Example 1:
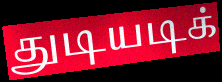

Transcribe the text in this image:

துடியடிக்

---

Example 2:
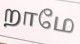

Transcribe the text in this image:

றாமே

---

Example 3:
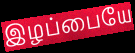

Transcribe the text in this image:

இழப்பையே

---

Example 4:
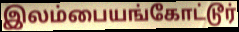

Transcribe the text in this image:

இலம்பையங்கோட்டூர்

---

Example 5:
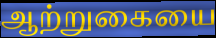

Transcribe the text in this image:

ஆற்றுகையை